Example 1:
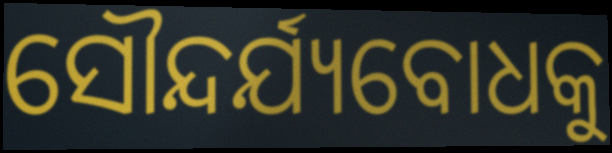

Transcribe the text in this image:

ସୌନ୍ଦର୍ଯ୍ୟବୋଧକୁ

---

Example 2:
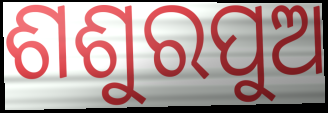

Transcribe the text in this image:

ଶଶୁରପୁଅ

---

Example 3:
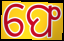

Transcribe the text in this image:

ଫେ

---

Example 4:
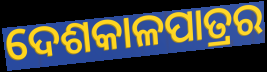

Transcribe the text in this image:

ଦେଶକାଳପାତ୍ରର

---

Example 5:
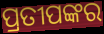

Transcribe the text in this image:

ପ୍ରତୀପଙ୍କର